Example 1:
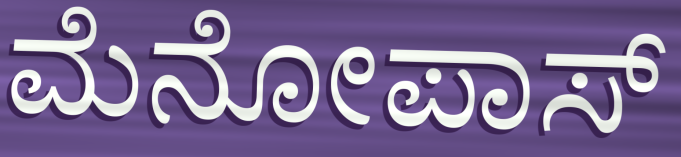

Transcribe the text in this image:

ಮೆನೋಪಾಸ್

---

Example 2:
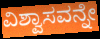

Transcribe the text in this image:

ವಿಶ್ವಾಸವನ್ನೇ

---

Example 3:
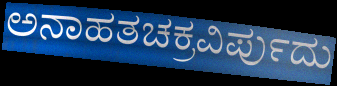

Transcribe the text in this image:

ಅನಾಹತಚಕ್ರವಿರ್ಪುದು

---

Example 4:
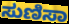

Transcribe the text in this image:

ಸುಣಿಸಾ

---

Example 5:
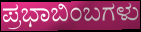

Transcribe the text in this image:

ಪ್ರಭಾಬಿಂಬಗಳು